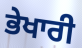
ਭੇਖਾਰੀ